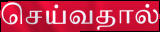
செய்வதால்